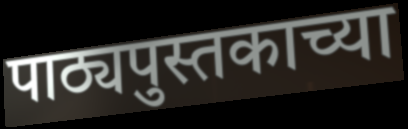
पाठ्यपुस्तकाच्या